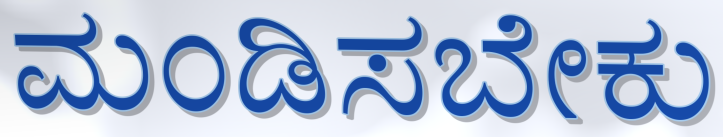
ಮಂಡಿಸಬೇಕು